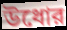
উধোর